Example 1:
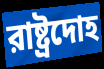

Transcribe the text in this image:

রাষ্ট্রদোহ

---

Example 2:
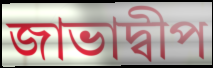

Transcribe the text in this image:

জাভাদ্বীপ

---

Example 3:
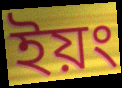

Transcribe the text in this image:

ইয়ং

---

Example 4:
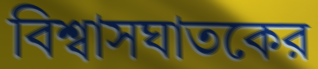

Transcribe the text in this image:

বিশ্বাসঘাতকের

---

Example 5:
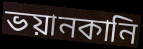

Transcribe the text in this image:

ভয়ানকানি